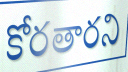
కోరతారని